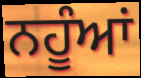
ਨਹੂੰਆਂ